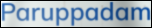
Paruppadam